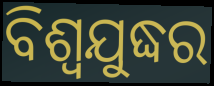
ବିଶ୍ୱଯୁଦ୍ଧର